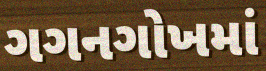
ગગનગોખમાં